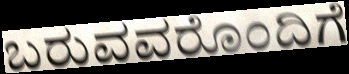
ಬರುವವರೊಂದಿಗೆ